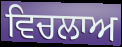
ਵਿਚਲਾਅ